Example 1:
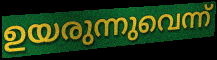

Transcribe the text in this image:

ഉയരുന്നുവെന്ന്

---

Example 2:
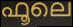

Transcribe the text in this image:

ഫൂലെ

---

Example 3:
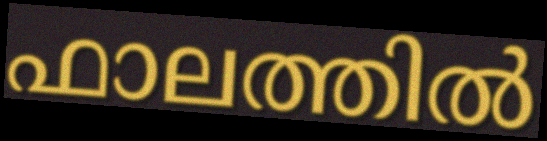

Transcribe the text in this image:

ഫാലത്തിൽ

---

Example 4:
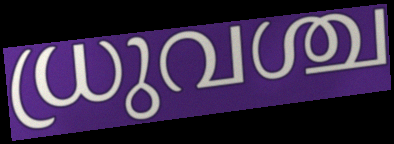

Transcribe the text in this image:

ധ്രുവശ്ച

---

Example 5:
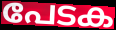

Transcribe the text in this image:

പേടക